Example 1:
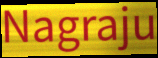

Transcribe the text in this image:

Nagraju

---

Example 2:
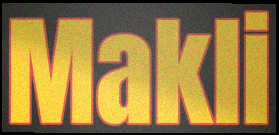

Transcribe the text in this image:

Makli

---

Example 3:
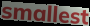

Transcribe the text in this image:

smallest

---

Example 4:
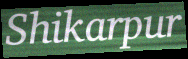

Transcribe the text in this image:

Shikarpur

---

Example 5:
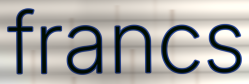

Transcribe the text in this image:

francs